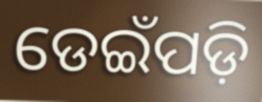
ଡେଇଁପଡ଼ି